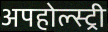
अपहोल्स्ट्री